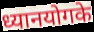
ध्यानयोगके